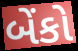
બેંકો